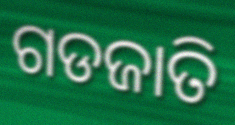
ଗଡଜାତି